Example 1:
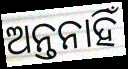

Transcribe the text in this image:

ଅନ୍ତନାହିଁ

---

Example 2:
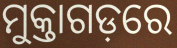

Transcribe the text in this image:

ମୁକ୍ତାଗଡ଼ରେ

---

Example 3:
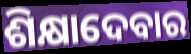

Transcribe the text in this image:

ଶିକ୍ଷାଦେବାର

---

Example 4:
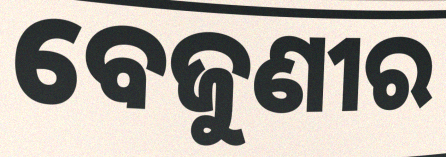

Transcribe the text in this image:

ବେଜୁଣୀର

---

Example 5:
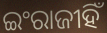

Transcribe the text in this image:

ଇଂରାଜୀହିଁ